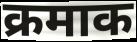
क्रमाक